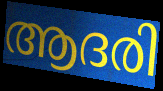
ആദരി